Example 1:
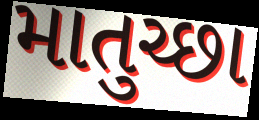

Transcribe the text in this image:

માતુચ્છા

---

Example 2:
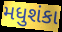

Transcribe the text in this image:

મધુશંકા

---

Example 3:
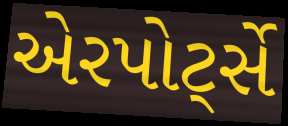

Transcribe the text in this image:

એરપોર્ટ્સે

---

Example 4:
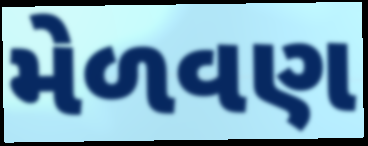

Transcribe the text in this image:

મેળવણ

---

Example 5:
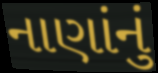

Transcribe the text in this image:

નાણાંનું